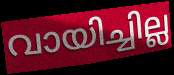
വായിച്ചില്ല